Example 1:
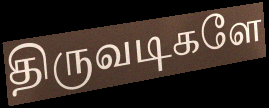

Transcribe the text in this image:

திருவடிகளே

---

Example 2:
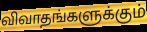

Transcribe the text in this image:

விவாதங்களுக்கும்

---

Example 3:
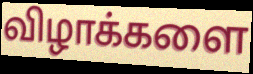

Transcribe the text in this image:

விழாக்களை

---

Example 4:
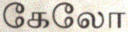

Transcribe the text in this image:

கேலோ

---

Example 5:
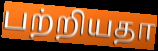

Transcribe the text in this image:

பற்றியதா